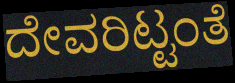
ದೇವರಿಟ್ಟಂತೆ